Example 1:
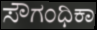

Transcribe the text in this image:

ಸೌಗಂಧಿಕಾ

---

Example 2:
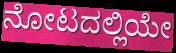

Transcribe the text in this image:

ನೋಟದಲ್ಲಿಯೇ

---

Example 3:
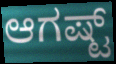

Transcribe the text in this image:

ಆಗಷ್ಟ್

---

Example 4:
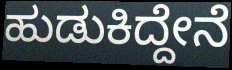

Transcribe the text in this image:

ಹುಡುಕಿದ್ದೇನೆ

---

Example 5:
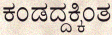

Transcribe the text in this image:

ಕಂಡದ್ದಕ್ಕಿಂತ